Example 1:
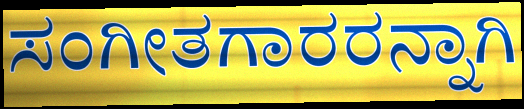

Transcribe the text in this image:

ಸಂಗೀತಗಾರರನ್ನಾಗಿ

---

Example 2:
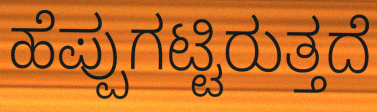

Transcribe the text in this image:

ಹೆಪ್ಪುಗಟ್ಟಿರುತ್ತದೆ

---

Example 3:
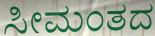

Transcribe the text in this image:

ಸೀಮಂತದ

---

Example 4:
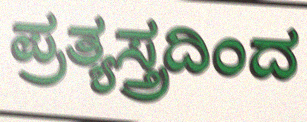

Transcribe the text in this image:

ಪ್ರತ್ಯಸ್ತ್ರದಿಂದ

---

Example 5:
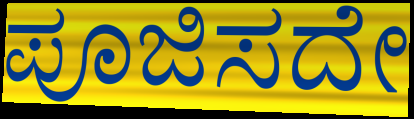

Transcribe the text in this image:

ಪೂಜಿಸದೇ